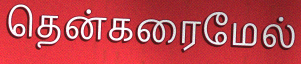
தென்கரைமேல்